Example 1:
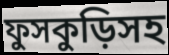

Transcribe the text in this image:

ফুসকুড়িসহ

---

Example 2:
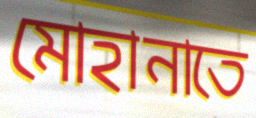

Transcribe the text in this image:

মোহানাতে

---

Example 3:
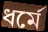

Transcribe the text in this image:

ধর্মে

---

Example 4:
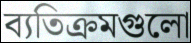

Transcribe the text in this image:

ব্যতিক্রমগুলো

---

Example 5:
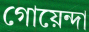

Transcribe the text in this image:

গোয়েন্দা